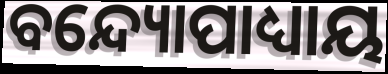
ବନ୍ଦ୍ୟୋପାଧ୍ୟାୟ